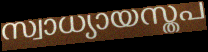
സ്വാധ്യായസ്തപ